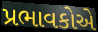
પ્રભાવકોએ